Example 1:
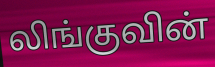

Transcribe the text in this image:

லிங்குவின்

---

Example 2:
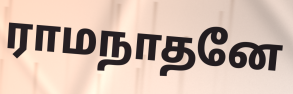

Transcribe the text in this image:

ராமநாதனே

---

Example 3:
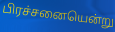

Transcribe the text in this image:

பிரச்சனையென்று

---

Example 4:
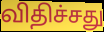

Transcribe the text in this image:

விதிச்சது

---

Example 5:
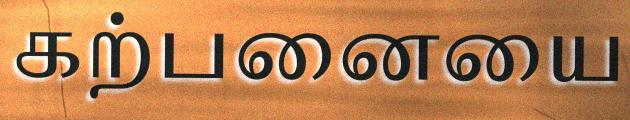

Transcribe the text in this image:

கற்பனையை